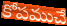
కోపముచే